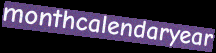
monthcalendaryear